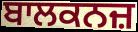
ਬਾਲਕਨਜ਼